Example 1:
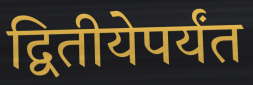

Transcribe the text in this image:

द्वितीयेपर्यंत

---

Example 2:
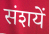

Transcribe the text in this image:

संशयें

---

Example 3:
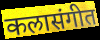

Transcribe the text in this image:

कलासंगीत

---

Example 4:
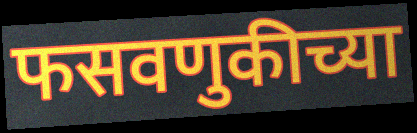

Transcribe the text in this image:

फसवणुकीच्या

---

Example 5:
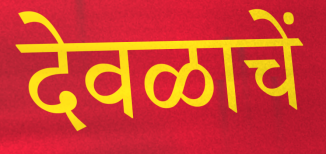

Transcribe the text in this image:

देवळाचें